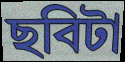
ছবিটা